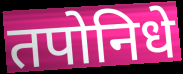
तपोनिधे